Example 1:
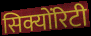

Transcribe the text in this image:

सिक्योंरिटी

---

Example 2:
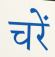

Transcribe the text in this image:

चरें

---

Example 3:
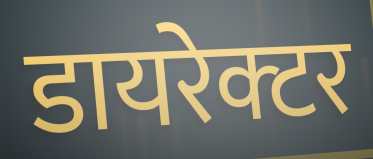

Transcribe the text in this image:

डायरेक्‍टर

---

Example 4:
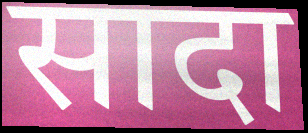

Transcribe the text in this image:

सादा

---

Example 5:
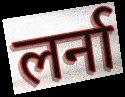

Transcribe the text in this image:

लर्ना